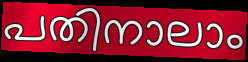
പതിനാലാം